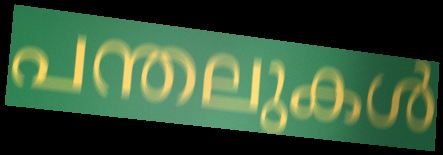
പന്തലുകൾ